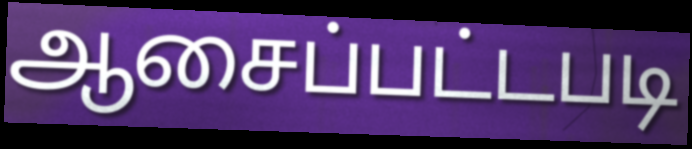
ஆசைப்பட்டபடி